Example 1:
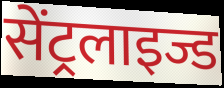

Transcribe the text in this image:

सेंट्रलाइज्ड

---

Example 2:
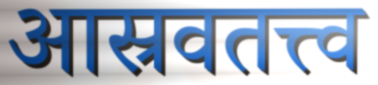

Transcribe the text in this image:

आस्रवतत्त्व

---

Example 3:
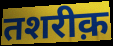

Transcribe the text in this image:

तशरीक़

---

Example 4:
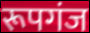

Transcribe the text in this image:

रूपगंज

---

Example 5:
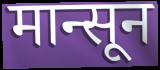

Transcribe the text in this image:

मान्सून